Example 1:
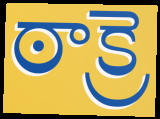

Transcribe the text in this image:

ఠాక్రె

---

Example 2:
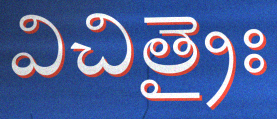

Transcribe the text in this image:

విచిత్రైః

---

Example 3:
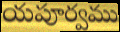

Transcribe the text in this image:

యపూర్వము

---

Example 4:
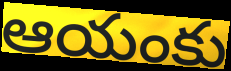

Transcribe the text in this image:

ఆయంకు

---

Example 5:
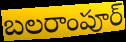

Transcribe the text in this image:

బలరాంపూర్